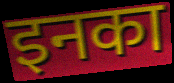
इनका